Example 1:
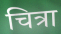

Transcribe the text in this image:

चित्रा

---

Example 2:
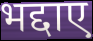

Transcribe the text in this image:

भद्दाए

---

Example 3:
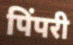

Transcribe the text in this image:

पिंपरी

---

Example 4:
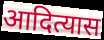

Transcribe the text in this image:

आदित्यास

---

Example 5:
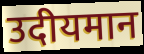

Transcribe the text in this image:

उदीयमान